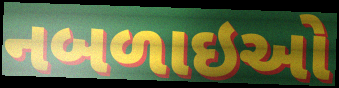
નબળાઇઓ